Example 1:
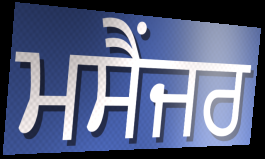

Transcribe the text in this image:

ਮਸੈਂਜਰ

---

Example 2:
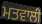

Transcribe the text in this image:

ਮਤਵਾਲੀ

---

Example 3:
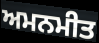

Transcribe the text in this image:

ਅਮਨਮੀਤ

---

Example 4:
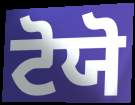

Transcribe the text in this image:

ਟੋਯੋ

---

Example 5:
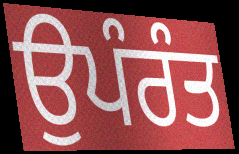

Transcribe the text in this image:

ਉਪੰਰੰਤ